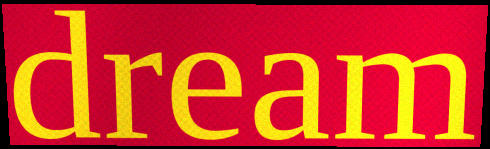
dream